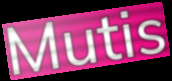
Mutis